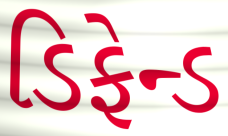
ડિફેન્ડ